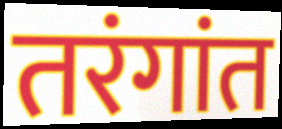
तरंगांत